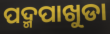
ପଦ୍ମପାଖୁଡା